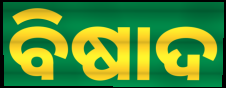
ବିଷାଦ